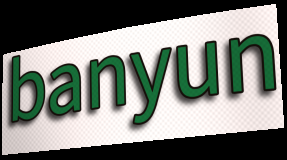
banyun